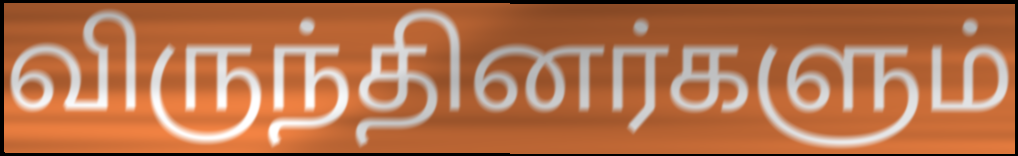
விருந்தினர்களும்